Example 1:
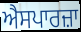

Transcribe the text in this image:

ਐਸਪਾਰਜ਼ਾ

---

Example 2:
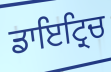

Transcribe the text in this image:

ਡਾਇਟ੍ਰਿਚ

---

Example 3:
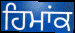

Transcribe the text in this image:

ਹਿਮਾਂਕ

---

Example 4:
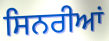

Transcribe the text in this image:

ਸਿਨਰੀਆਂ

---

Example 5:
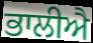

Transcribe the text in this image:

ਭਾਲੀਐ